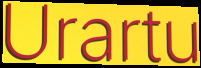
Urartu